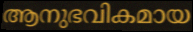
ആനുഭവികമായ